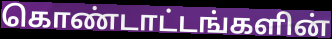
கொண்டாட்டங்களின்